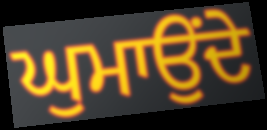
ਘੁਮਾਉਂਦੇ